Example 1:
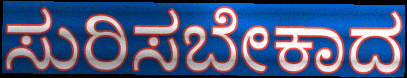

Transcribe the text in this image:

ಸುರಿಸಬೇಕಾದ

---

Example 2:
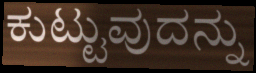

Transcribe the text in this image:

ಕುಟ್ಟುವುದನ್ನು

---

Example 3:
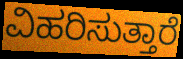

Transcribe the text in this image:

ವಿಹರಿಸುತ್ತಾರೆ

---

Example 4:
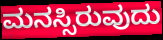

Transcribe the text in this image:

ಮನಸ್ಸಿರುವುದು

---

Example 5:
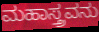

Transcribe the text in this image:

ಮಹಾಸ್ತ್ರವನು